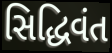
સિદ્ધિવંત